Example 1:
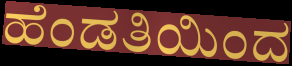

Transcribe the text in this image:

ಹೆಂಡತಿಯಿಂದ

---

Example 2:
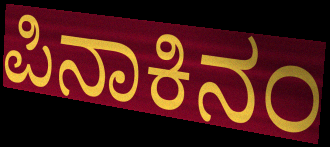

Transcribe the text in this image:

ಪಿನಾಕಿನಂ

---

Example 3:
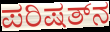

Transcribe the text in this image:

ಪರಿಷತ್‌ನ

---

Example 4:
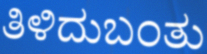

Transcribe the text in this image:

ತಿಳಿದುಬಂತು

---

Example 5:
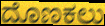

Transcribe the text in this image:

ದೊಣಕಲು